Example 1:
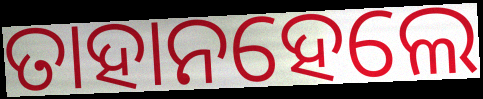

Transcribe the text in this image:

ତାହାନହେଲେ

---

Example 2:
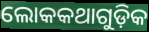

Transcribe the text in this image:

ଲୋକକଥାଗୁଡ଼ିକ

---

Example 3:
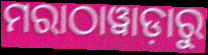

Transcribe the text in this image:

ମରାଠାୱାଡ଼ାରୁ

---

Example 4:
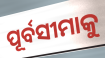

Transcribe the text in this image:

ପୂର୍ବସୀମାକୁ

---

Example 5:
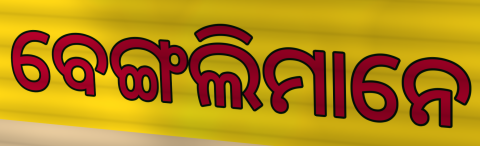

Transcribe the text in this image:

ବେଙ୍ଗଲିମାନେ